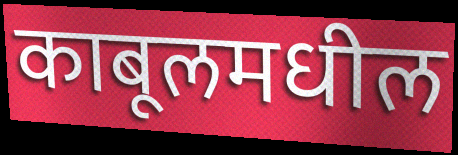
काबूलमधील